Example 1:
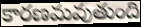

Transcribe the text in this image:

కారణమవుతుంది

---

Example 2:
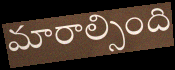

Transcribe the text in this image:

మారాల్సింది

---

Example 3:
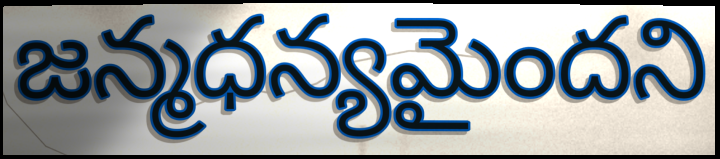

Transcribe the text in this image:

జన్మధన్యమైందని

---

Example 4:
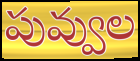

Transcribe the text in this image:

పువ్వుల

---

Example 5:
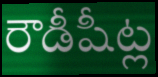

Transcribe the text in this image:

రౌడీషీట్ల